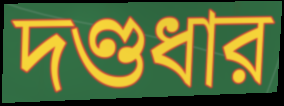
দণ্ডধার